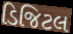
ડિજિટલ